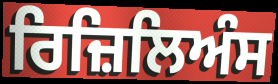
ਰਿਜ਼ਿਲਿਅੰਸ